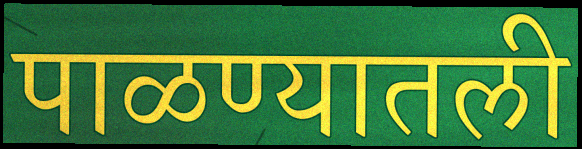
पाळण्यातली